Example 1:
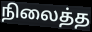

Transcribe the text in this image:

நிலைத்த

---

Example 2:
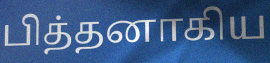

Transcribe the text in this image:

பித்தனாகிய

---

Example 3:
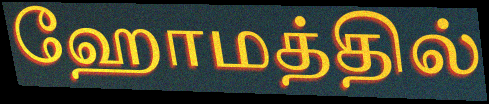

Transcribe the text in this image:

ஹோமத்தில்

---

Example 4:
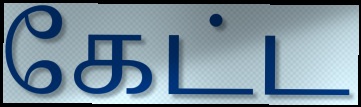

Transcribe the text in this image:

கேட்ட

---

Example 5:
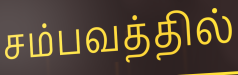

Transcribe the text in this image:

சம்பவத்தில்